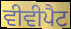
ਵੀਵੀਪੈਟ